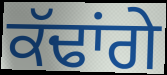
ਕੱਢਾਂਗੇ